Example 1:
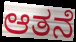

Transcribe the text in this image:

ಆತನೆ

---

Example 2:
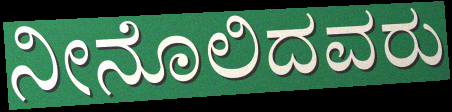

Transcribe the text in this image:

ನೀನೊಲಿದವರು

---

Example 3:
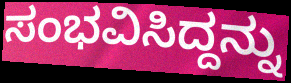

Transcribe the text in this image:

ಸಂಭವಿಸಿದ್ದನ್ನು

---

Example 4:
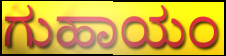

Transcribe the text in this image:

ಗುಹಾಯಂ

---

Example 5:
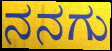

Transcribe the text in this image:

ನನಗು